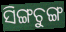
ସିଙ୍ଗଚୁଙ୍ଗ